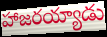
హాజరయ్యాడు